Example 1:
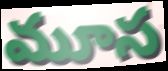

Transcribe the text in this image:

మూస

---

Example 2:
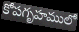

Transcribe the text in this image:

కోపగృహములో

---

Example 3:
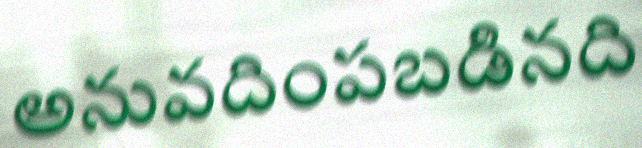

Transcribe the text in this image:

అనువదింపబడినది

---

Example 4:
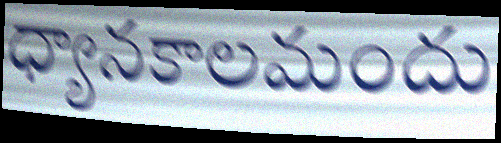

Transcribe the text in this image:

ధ్యానకాలమందు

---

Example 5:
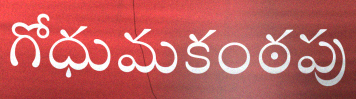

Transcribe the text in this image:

గోధుమకంఠపు